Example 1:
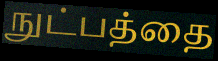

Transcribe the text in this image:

நுட்பத்தை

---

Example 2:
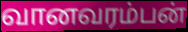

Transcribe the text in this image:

வானவரம்பன்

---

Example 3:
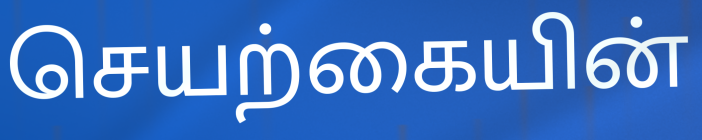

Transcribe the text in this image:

செயற்கையின்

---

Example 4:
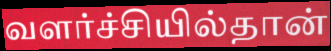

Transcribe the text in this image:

வளர்ச்சியில்தான்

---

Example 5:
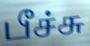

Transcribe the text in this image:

பீச்சு